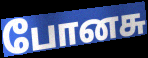
போனசு